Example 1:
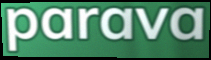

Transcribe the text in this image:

parava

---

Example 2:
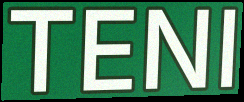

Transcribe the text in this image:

TENI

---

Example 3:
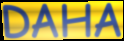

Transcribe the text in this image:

DAHA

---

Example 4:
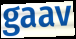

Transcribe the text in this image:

gaav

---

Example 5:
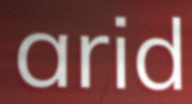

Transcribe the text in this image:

arid